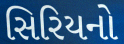
સિરિયનો